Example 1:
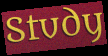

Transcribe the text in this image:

Study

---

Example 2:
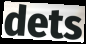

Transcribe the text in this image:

dets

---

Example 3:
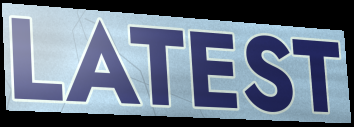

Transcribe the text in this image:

LATEST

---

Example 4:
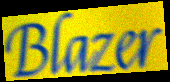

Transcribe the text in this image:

Blazer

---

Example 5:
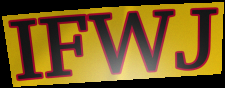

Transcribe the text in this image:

IFWJ